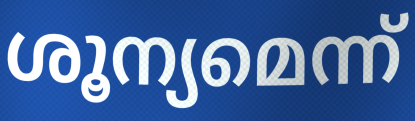
ശൂന്യമെന്ന്